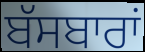
ਬੱਸਬਾਰਾਂ